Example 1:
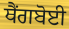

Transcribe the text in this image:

ਥੈਂਗਬੋਈ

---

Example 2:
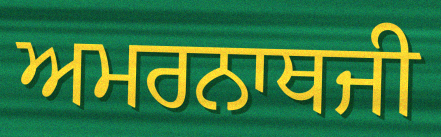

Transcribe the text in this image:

ਅਮਰਨਾਥਜੀ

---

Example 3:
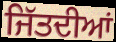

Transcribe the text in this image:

ਜਿੱਤਦੀਆਂ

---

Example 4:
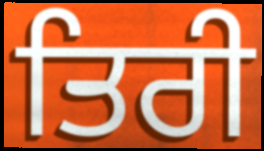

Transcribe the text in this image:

ਤਿਰੀ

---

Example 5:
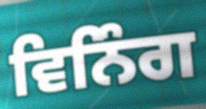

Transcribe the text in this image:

ਵਿਨਿੰਗ